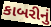
કાબરીનું